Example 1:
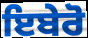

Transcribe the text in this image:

ਇਬੇਰੋ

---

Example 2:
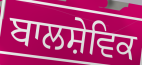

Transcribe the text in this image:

ਬਾਲਸ਼ੇਵਿਕ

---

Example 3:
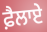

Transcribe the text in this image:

ਫ਼ੈਲਾਏ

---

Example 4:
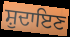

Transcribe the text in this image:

ਸ਼ੁਦਾਇਣ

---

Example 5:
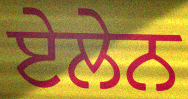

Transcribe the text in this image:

ਏਲੇਨ